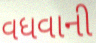
વધવાની